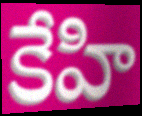
కేహి